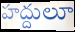
హద్దులూ